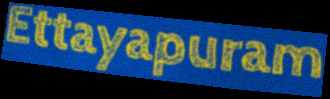
Ettayapuram